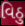
વિઠુ